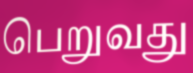
பெறுவது